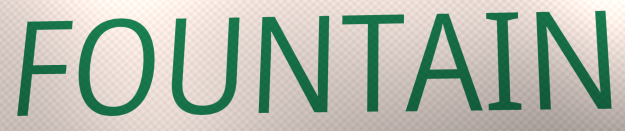
FOUNTAIN